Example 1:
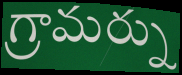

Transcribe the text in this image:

గ్రామర్ను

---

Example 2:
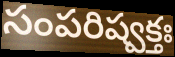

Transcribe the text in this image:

సంపరిష్వక్తః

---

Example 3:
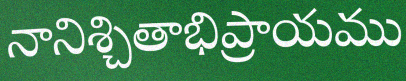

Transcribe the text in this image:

నానిశ్చితాభిప్రాయము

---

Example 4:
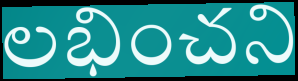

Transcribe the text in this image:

లభించని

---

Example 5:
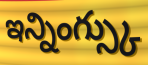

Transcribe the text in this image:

ఇన్నింగ్స్కు